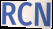
RCN